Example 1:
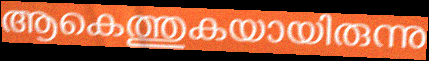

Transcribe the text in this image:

ആകെത്തുകയായിരുന്നു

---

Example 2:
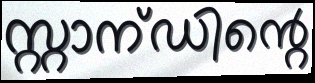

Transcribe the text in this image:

സ്റ്റാന്ഡിന്റെ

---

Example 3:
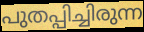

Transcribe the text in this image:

പുതപ്പിച്ചിരുന്ന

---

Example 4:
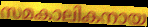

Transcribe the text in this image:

സമകാലികനായ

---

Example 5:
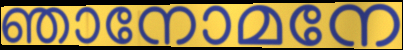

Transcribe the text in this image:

ഞാനോമനേ